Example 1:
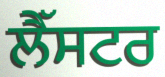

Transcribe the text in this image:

ਲੈੱਸਟਰ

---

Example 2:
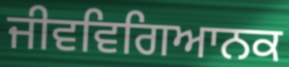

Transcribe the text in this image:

ਜੀਵਵਿਗਿਆਨਕ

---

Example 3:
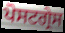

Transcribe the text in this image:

ਪੋਸਟਗ੍ਰੇਸ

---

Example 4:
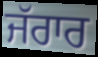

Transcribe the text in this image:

ਜੱਰਾਰ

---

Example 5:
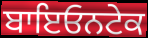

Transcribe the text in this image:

ਬਾਇਓਨਟੇਕ